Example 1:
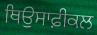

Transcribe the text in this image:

ਥਿਉਸਾਫ਼ੀਕਲ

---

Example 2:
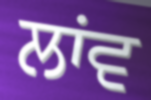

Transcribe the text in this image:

ਲਾਂਵ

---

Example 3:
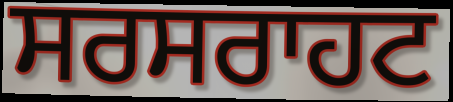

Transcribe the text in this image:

ਸਰਸਰਾਹਟ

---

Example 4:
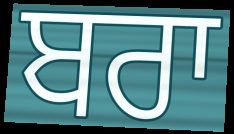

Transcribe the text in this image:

ਬਰਾ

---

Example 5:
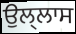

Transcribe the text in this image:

ਉਲ੍ਲਾਸ